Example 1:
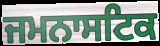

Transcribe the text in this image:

ਜਮਨਾਸਟਿਕ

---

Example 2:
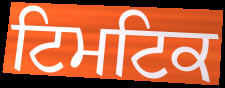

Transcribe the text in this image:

ਟਿਮਟਿਕ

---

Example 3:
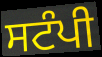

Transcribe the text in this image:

ਸਟੰਪੀ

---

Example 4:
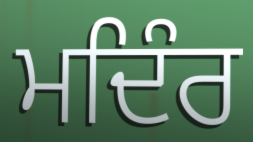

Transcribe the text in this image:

ਮਦਿੰਰ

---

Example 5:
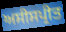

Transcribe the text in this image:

ਅਸੀਸਪ੍ਰੀਤ